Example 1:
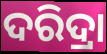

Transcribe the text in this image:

ଦରିଦ୍ରା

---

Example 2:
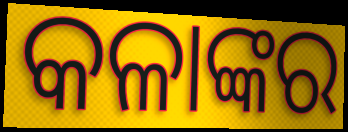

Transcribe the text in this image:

କଳାଙ୍କର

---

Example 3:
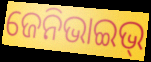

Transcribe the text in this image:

ଜେନିଭାଇଭ୍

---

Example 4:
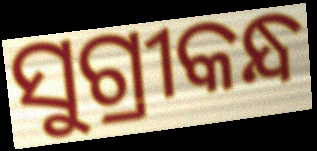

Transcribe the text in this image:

ସୁଗ୍ରୀକନ୍ଧ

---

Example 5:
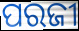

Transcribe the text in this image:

ପରଜୀ